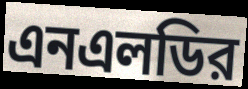
এনএলডির